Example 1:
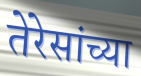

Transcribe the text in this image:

तेरेसांच्या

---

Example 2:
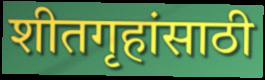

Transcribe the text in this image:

शीतगृहांसाठी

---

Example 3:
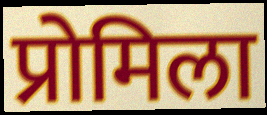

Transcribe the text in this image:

प्रोमिला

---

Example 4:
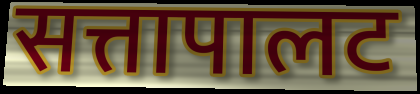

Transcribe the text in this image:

सत्तापालट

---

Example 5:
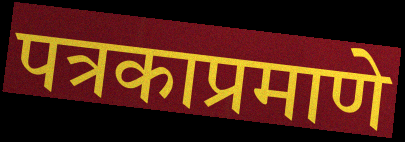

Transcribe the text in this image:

पत्रकाप्रमाणे